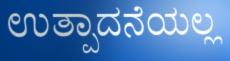
ಉತ್ಪಾದನೆಯಲ್ಲ